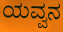
ಯವ್ವನ